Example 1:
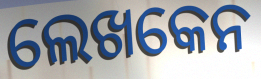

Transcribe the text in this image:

ଲେଖକେନ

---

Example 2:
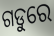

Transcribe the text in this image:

ଗଡୁରେ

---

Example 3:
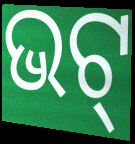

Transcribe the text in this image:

ଭଟ୍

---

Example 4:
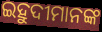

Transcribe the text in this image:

ଇହୁଦୀମାନଙ୍କ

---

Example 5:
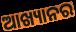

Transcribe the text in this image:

ଆଖ୍ୟାନର